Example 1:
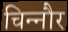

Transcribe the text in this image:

चिन्‍नौर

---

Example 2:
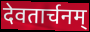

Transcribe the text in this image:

देवतार्चनम्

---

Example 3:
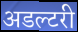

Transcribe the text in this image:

अडल्टरी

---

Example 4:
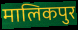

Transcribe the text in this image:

मालिकपुर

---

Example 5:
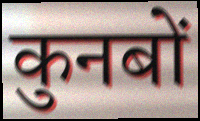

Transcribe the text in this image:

कुनबों